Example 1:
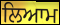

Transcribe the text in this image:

ਲਿਆਮ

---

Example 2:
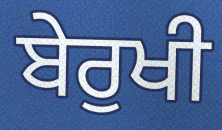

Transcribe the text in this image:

ਬੇਰੁਖੀ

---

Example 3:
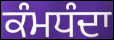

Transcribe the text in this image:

ਕੰਮਧੰਦਾ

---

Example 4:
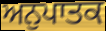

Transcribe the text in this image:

ਅਨੁਪਾਤਕ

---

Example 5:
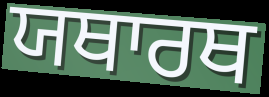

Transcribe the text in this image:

ਯਥਾਰਥ